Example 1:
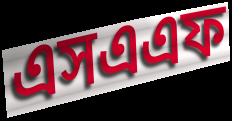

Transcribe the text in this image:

এসএএফ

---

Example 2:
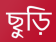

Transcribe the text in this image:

ছুড়ি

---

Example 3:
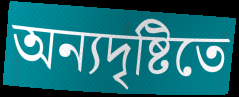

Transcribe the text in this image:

অন্যদৃষ্টিতে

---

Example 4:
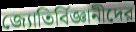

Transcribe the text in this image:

জ্যোতির্বিজ্ঞানীদের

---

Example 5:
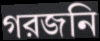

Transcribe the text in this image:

গরজনি